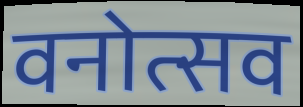
वनोत्सव